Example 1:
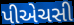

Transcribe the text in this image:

પીએચસી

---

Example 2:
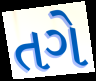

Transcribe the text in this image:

તગે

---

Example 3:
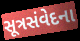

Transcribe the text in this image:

સૂત્રસંવેદના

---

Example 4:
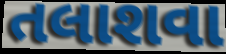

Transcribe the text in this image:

તલાશવા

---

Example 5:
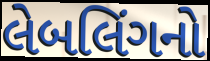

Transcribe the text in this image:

લેબલિંગનો